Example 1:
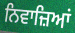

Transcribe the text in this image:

ਨਿਵਾਜ਼ਿਆਂ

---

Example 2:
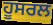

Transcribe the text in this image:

ਹੂਸਰਲ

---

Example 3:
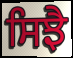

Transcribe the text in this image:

ਸਿਝੈ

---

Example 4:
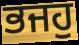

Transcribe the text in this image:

ਭਜਹੁ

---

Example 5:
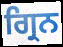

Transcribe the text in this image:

ਗ੍ਰਿਨ